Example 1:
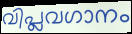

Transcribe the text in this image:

വിപ്ലവഗാനം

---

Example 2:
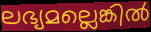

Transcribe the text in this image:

ലഭ്യമല്ലെങ്കിൽ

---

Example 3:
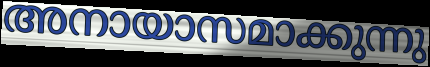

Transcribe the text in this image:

അനായാസമാക്കുന്നു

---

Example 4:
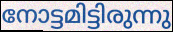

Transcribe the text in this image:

നോട്ടമിട്ടിരുന്നു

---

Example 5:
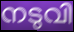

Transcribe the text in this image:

നടുവി